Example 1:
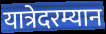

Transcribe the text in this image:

यात्रेदरम्यान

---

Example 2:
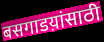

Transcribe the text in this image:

बसगाडय़ांसाठी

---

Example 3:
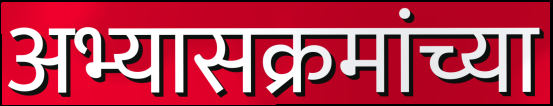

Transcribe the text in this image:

अभ्यासक्रमांच्या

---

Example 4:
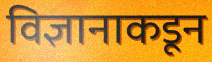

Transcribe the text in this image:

विज्ञानाकडून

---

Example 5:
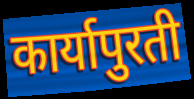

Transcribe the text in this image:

कार्यापुरती